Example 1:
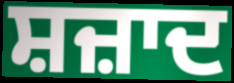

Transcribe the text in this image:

ਸ਼ਜ਼ਾਦ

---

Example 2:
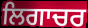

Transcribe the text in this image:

ਲਿਗਾਚਰ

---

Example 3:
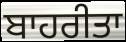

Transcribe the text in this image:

ਬਾਹਰੀਤਾ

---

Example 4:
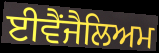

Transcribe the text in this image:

ਈਵੈਂਜੈਲਿਅਮ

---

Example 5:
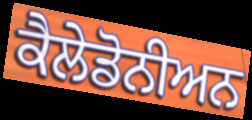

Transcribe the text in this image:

ਕੈਲੇਡੋਨੀਅਨ